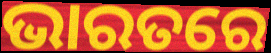
ଭାରତରେ